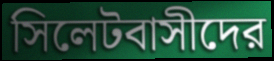
সিলেটবাসীদের